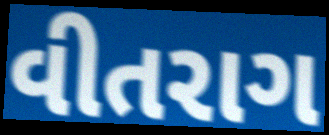
વીતરાગ